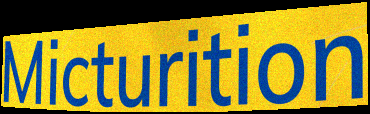
Micturition